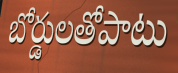
బోర్డులతోపాటు